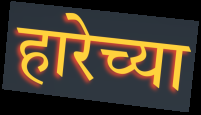
हारेच्या